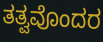
ತತ್ವವೊಂದರ